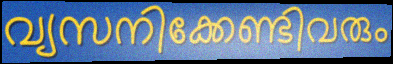
വ്യസനിക്കേണ്ടിവരും